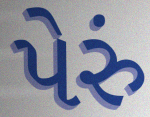
પેરું